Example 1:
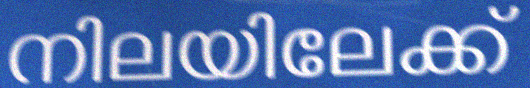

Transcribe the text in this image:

നിലയിലേക്ക്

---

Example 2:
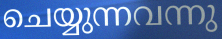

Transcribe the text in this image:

ചെയ്യുന്നവന്നു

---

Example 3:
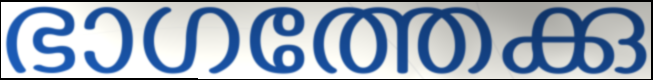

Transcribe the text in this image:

ഭാഗത്തേക്കു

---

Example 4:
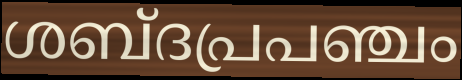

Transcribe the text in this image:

ശബ്ദപ്രപഞ്ചം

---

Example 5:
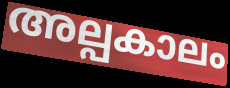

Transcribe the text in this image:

അല്പകാലം